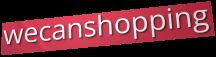
wecanshopping